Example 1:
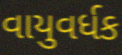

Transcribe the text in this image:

વાયુવર્ધક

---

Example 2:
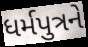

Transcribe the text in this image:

ધર્મપુત્રને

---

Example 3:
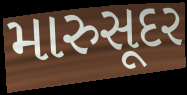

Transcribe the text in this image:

મારુસૂદર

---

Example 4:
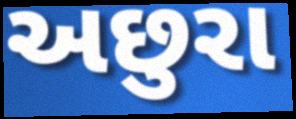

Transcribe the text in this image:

અછુરા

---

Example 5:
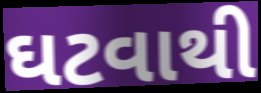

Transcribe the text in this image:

ઘટવાથી